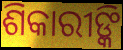
ଶିକାରୀଙ୍କି